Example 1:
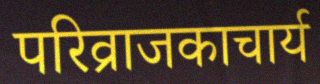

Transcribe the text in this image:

परिव्राजकाचार्य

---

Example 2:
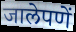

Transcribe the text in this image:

जालेपणें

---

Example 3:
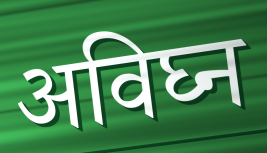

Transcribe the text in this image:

अविघ्न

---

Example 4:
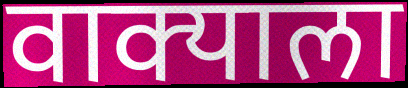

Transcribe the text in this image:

वाक्याला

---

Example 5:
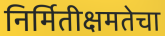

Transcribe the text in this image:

निर्मितीक्षमतेचा